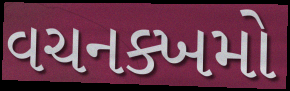
વચનક્ખમો